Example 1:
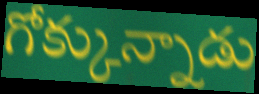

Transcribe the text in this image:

గోక్కున్నాడు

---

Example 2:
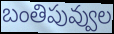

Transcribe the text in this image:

బంతిపువ్వుల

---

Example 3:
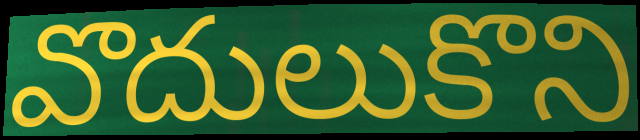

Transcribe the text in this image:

వొదులుకొని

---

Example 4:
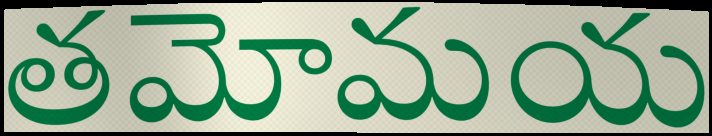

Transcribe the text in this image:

తమోమయ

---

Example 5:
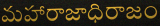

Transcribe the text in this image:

మహారాజాధిరాజం